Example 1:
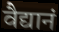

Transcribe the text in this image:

वैद्यानं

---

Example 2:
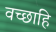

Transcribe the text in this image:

वच्छाहि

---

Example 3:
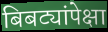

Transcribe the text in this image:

बिबट्यांपेक्षा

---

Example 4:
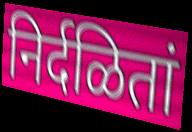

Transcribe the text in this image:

निर्दळितां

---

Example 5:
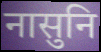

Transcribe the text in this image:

नासुनि